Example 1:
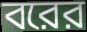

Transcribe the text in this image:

বরের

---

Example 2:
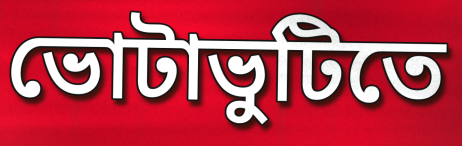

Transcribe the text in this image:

ভোটাভুটিতে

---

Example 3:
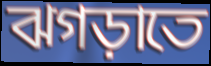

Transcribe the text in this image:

ঝগড়াতে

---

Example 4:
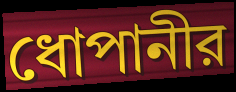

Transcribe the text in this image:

ধোপানীর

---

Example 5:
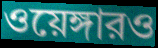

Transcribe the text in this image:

ওয়েঙ্গারও